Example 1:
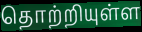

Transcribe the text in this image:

தொற்றியுள்ள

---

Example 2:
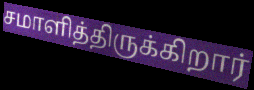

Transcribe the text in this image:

சமாளித்திருக்கிறார்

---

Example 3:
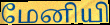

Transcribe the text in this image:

மேனியி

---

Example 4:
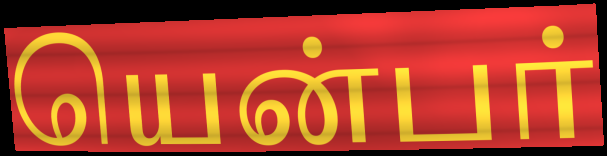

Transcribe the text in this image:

யென்பர்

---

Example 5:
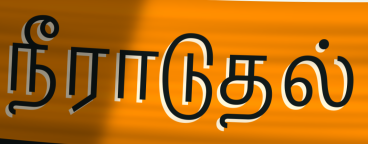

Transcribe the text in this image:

நீராடுதல்